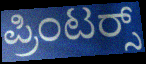
ಪ್ರಿಂಟರ‍್ಸ್